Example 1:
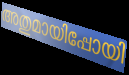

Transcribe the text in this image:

അതുമായിപ്പോയി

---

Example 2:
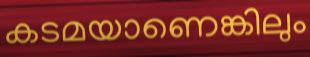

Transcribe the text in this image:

കടമയാണെങ്കിലും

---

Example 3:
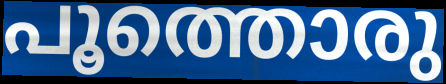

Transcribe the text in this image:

പൂത്തൊരു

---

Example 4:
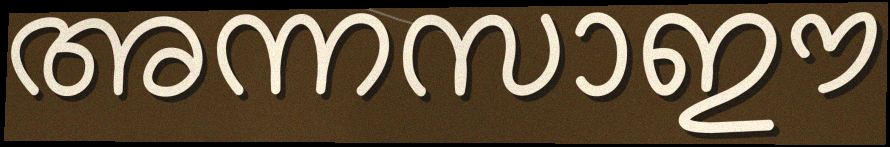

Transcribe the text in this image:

അന്നസാഈ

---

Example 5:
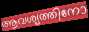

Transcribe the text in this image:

ആവശ്യത്തിനോ